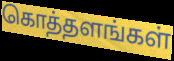
கொத்தளங்கள்